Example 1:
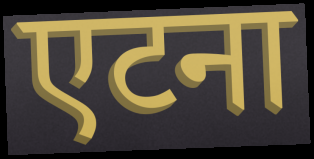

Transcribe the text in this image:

एटना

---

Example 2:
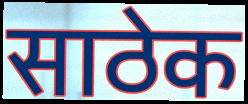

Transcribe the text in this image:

साठेक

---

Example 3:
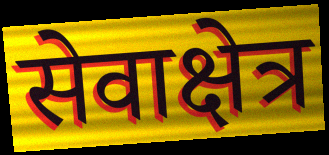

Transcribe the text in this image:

सेवाक्षेत्र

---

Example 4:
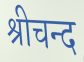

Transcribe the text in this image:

श्रीचन्द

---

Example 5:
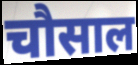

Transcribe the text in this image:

चौसाल